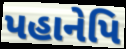
પહાનેપિ